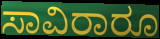
ಸಾವಿರಾರೂ